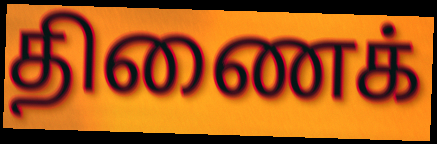
திணைக்